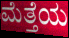
ಮೆತ್ತೆಯ